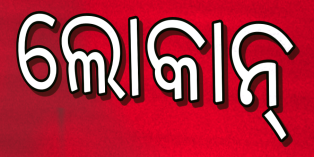
ଲୋକାନ୍